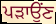
ਪੜਾਉਂਣ